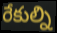
రేకుల్ని